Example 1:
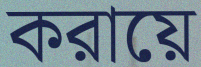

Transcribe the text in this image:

করায়ে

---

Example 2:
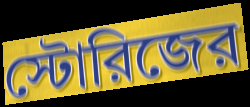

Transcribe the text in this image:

স্টোরিজের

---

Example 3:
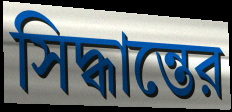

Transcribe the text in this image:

সিদ্ধান্তের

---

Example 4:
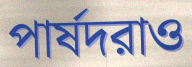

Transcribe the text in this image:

পার্ষদরাও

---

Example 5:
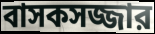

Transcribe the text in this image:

বাসকসজ্জার